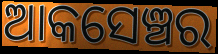
ଆକସେଞ୍ଚର